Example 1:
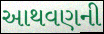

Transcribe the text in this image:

આથવણની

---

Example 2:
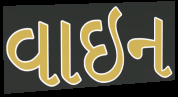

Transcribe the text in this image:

વાઇન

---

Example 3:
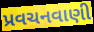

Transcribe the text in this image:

પ્રવચનવાણી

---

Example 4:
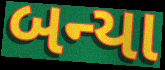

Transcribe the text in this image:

બન્યા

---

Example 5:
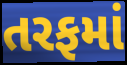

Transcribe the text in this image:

તરફમાં